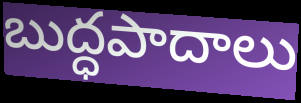
బుద్ధపాదాలు